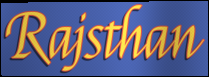
Rajsthan